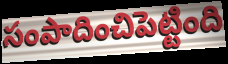
సంపాదించిపెట్టింది